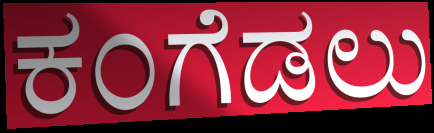
ಕಂಗೆಡಲು